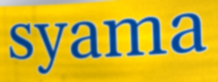
syama